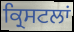
ਕ੍ਰਿਸਟਲਾਂ